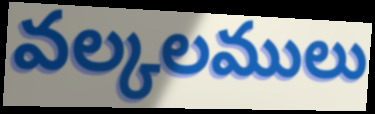
వల్కలములు